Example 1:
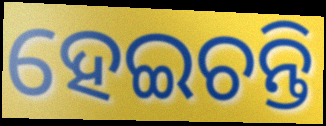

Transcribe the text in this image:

ହେଇଚନ୍ତି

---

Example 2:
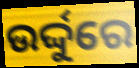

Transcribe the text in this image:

ଉର୍ଦ୍ଦୁରେ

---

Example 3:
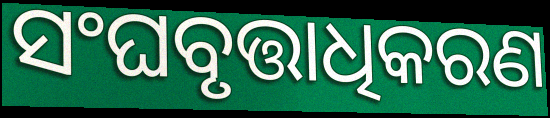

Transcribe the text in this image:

ସଂଘବୃତ୍ତାଧିକରଣ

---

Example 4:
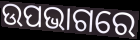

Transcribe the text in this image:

ଉପଭାଗରେ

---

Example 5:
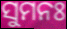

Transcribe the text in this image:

ସୁମନଃ